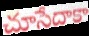
చూసేదాకా